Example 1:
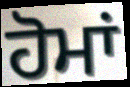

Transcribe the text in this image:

ਹੋਮਾਂ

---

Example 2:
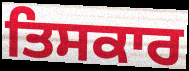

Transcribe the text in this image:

ਤਿਸਕਾਰ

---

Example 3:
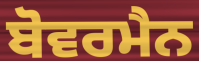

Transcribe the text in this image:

ਬੋਵਰਮੈਨ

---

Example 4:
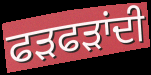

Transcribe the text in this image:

ਫੜਫੜਾਂਦੀ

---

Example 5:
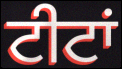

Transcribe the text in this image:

ਟੀਟਾਂ